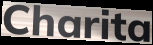
Charita